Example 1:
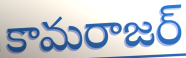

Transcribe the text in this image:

కామరాజర్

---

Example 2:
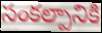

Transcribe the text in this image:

సంకల్పానికి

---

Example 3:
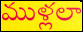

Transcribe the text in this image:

ముళ్లలా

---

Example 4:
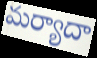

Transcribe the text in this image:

మర్యాదా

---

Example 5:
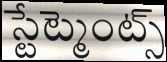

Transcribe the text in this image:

స్టేట్మెంట్స్